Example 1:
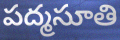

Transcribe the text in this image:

పద్మసూతి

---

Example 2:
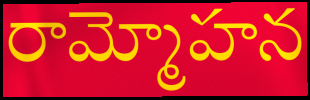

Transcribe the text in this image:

రామ్మోహన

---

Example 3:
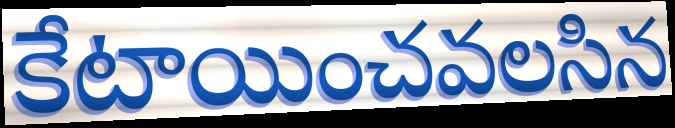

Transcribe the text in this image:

కేటాయించవలసిన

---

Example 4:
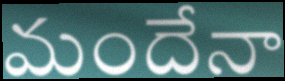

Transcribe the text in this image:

మందేనా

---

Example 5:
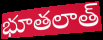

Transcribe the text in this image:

భూతలాత్